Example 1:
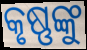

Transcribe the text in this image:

କୃଷ୍ଣଙ୍କୁ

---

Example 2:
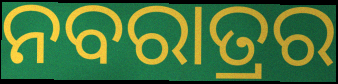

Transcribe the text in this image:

ନବରାତ୍ରର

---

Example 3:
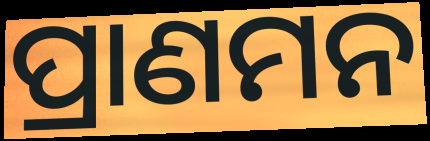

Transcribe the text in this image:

ପ୍ରାଣମନ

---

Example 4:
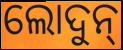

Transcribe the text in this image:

ଲୋଦୁନ୍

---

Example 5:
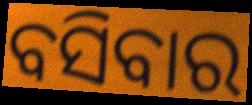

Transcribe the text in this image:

ବସିବାର